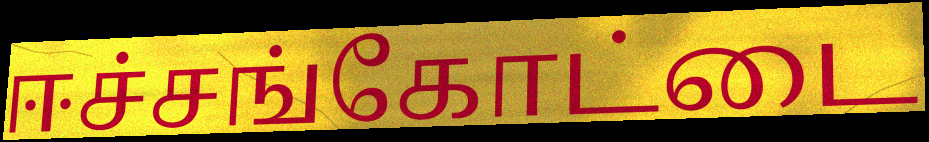
ஈச்சங்கோட்டை